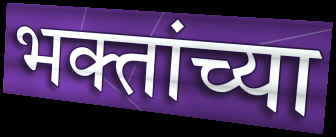
भक्तांच्या